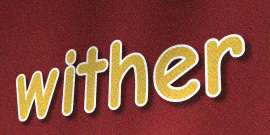
wither